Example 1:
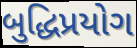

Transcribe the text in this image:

બુદ્ધિપ્રયોગ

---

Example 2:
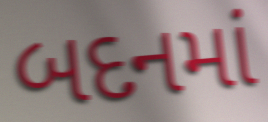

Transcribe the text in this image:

બદનમાં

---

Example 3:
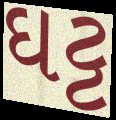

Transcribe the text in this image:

ઘટ્ટ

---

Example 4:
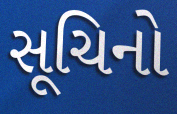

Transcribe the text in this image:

સૂચિનો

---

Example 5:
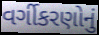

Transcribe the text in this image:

વર્ગીકરણોનું